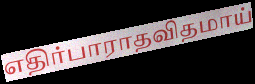
எதிர்பாராதவிதமாய்